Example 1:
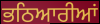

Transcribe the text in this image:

ਭਠਿਆਰੀਆਂ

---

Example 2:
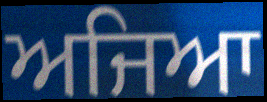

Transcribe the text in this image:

ਅਜਿਆ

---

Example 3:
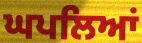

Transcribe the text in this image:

ਘਪਲਿਆਂ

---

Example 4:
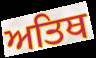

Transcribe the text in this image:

ਅਤਿਥ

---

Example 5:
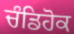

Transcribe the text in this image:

ਚੰਡਿਹੋਕ